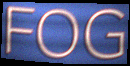
FOG